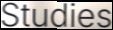
Studies